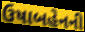
ઉષાબહેનની